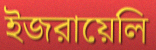
ইজরায়েলি